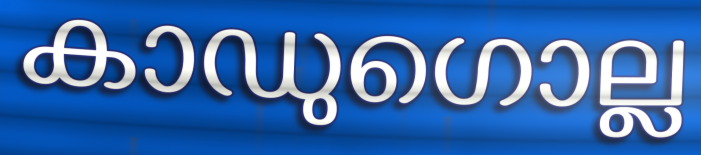
കാഡുഗൊല്ല